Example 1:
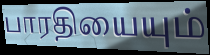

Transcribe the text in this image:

பாரதியையும்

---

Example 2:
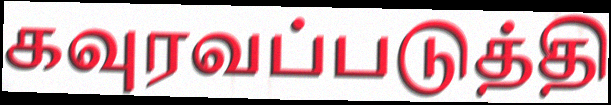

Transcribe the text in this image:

கவுரவப்படுத்தி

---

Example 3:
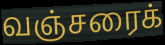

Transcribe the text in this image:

வஞ்சரைக்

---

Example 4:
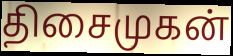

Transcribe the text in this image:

திசைமுகன்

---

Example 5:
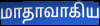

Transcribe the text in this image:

மாதாவாகிய